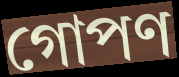
গোপণ